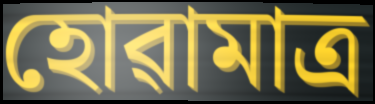
হোৱামাত্ৰ